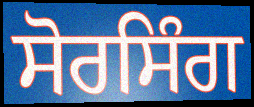
ਸੋਰਸਿੰਗ